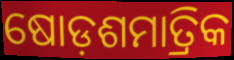
ଷୋଡ଼ଶମାତ୍ରିକ